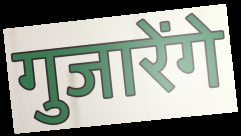
गुजारेंगे